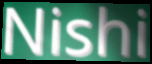
Nishi